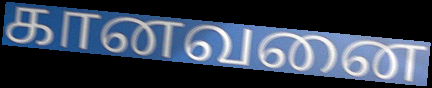
கானவனை